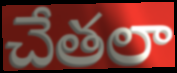
చేతలా